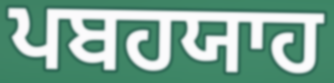
ਪਬਹਯਾਹ